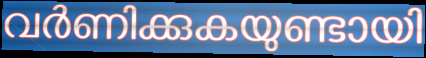
വർണിക്കുകയുണ്ടായി